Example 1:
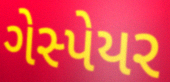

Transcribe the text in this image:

ગેસ્પેયર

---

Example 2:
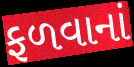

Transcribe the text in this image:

ફળવાનાં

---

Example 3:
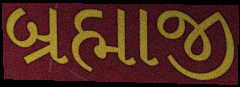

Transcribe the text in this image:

બ્રહ્માજી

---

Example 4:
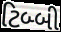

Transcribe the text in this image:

ટિબ્બી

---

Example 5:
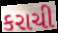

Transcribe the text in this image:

કરાચી